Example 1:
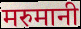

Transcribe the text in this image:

मरुमानी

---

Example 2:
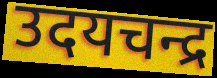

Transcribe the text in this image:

उदयचन्द्र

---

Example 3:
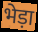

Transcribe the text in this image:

भेड़ा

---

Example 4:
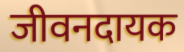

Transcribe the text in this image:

जीवनदायक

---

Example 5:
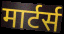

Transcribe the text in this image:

मार्टर्स